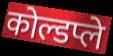
कोल्डप्ले